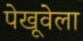
पेखूवेला